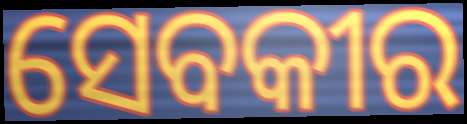
ସେବକୀର